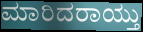
ಮಾರಿದರಾಯ್ತು